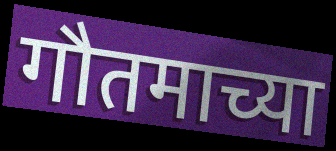
गौतमाच्या